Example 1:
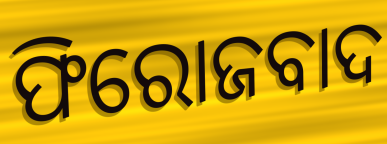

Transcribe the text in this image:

ଫିରୋଜବାଦ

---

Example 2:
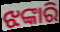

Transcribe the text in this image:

ଝଙ୍କାରି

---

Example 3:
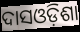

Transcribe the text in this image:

ଦାସଓଡ଼ିଶା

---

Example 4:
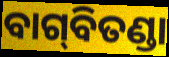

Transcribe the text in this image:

ବାଗ୍‍ବିତଣ୍ଡା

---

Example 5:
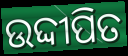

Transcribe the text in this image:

ଉଦ୍ଦୀପିତ